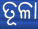
ତୂଳା